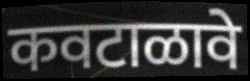
कवटाळावे